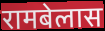
रामबेलास